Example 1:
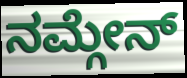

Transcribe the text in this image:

ನಮ್ಗೇನ್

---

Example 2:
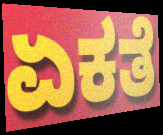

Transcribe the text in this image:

ಏಕತೆ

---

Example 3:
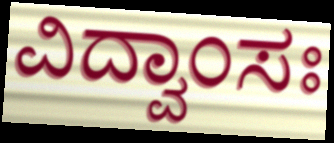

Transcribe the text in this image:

ವಿದ್ವಾಂಸಃ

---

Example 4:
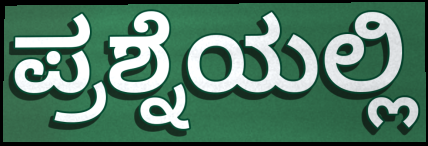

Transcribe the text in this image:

ಪ್ರಶ್ನೆಯಲ್ಲಿ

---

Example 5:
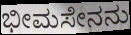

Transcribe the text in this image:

ಭೀಮಸೇನನು